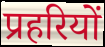
प्रहरियों